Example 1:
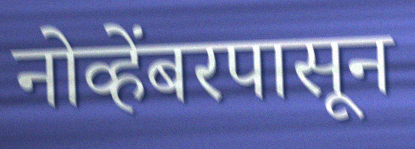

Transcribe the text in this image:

नोव्हेंबरपासून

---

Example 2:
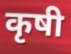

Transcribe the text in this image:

कृषी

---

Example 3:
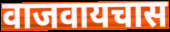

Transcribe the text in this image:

वाजवायचास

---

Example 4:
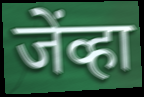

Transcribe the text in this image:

जेंव्हा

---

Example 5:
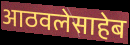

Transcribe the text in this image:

आठवलेसाहेब